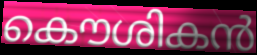
കൌശികൻ